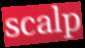
scalp